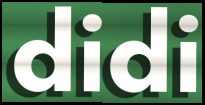
didi